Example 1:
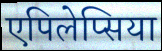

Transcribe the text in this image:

एपिलेप्सिया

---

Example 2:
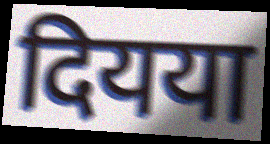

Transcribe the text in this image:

दियया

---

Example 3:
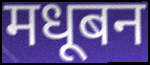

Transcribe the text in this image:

मधूबन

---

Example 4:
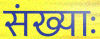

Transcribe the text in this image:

संख्याः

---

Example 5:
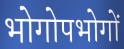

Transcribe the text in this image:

भोगोपभोगों